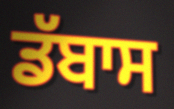
ਡੱਬਾਸ